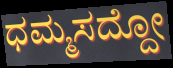
ಧಮ್ಮಸದ್ದೋ